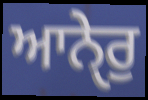
ਆਨੇੑਰੁ